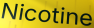
Nicotine